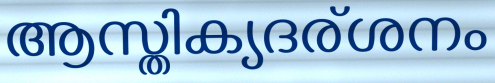
ആസ്തിക്യദര്ശനം